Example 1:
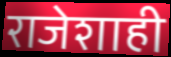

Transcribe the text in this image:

राजेशाही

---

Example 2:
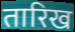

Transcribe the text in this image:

तारिख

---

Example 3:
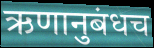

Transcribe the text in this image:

ऋणानुबंधच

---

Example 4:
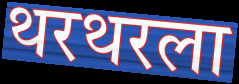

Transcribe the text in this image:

थरथरला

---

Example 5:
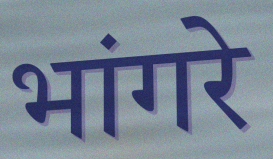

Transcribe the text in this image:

भांगरे